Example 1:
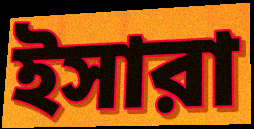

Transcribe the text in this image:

ইসারা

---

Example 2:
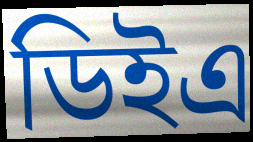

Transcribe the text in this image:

ডিইএ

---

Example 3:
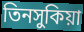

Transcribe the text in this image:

তিনসুকিয়া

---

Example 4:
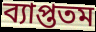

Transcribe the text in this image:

ব্যাপ্ততম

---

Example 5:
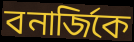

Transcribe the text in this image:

বনার্জিকে